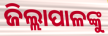
ଜିଲ୍ଲାପାଳଙ୍କୁ